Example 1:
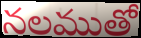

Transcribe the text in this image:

నలముతో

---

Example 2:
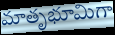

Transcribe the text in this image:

మాతృభూమిగా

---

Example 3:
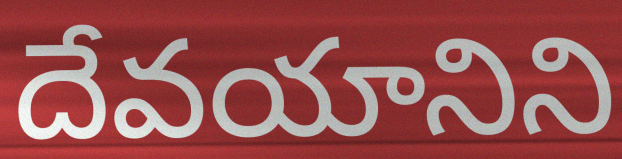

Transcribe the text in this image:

దేవయానిని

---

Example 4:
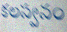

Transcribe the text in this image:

కలస్వనం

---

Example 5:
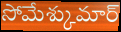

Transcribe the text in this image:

సోమేశ్కుమార్